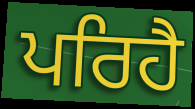
ਪਰਿਹੈ